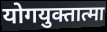
योगयुक्तात्मा